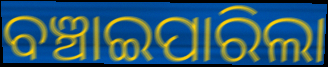
ବଞ୍ଚାଇପାରିଲା